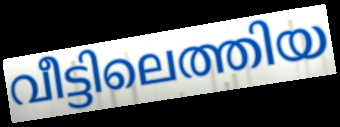
വീട്ടിലെത്തിയ